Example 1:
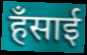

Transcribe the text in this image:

हँसाई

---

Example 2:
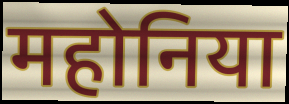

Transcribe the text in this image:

महोनिया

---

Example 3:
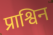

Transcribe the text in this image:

प्राश्विन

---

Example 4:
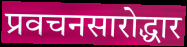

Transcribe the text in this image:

प्रवचनसारोद्धार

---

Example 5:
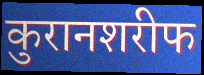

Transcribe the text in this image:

कुरानशरीफ